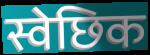
स्वेछिक